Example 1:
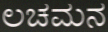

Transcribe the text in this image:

ಲಚಮನ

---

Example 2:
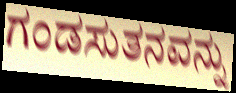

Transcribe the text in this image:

ಗಂಡಸುತನವನ್ನು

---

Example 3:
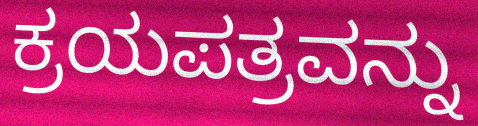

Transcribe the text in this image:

ಕ್ರಯಪತ್ರವನ್ನು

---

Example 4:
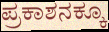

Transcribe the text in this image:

ಪ್ರಕಾಶನಕ್ಕೂ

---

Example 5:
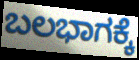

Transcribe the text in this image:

ಬಲಭಾಗಕ್ಕೆ